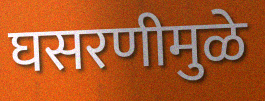
घसरणीमुळे